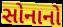
સોનાનો